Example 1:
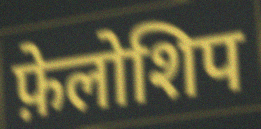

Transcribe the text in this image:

फ़ेलोशिप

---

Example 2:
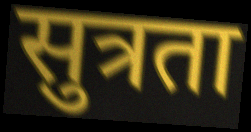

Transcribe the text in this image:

सुत्रता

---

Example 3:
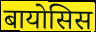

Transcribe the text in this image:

बायोसिस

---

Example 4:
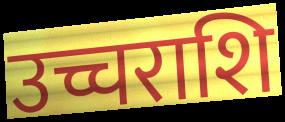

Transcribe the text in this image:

उच्चराशि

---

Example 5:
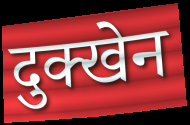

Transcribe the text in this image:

दुक्खेन